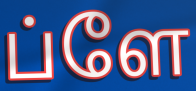
ப்ளே